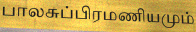
பாலசுப்பிரமணியமும்